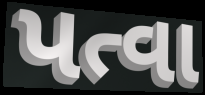
પત્વા